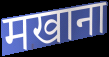
मखाना